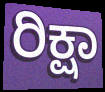
ರಿಕ್ಷಾ